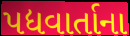
પદ્યવાર્તાના